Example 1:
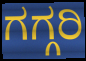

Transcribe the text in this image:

ಗಗ್ಗರಿ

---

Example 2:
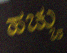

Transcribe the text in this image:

ಹಚ್ಚು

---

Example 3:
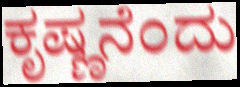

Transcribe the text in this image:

ಕೃಷ್ಣನೆಂದು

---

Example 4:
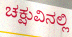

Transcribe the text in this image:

ಚಕ್ಷುವಿನಲ್ಲಿ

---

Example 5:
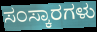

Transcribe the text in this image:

ಸಂಸ್ಕಾರಗಳು